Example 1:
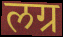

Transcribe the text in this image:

लग्र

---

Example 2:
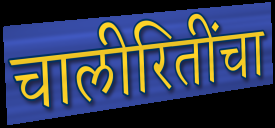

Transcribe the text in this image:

चालीरितींचा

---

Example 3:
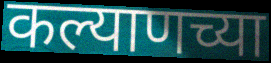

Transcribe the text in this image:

कल्याणच्या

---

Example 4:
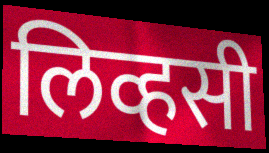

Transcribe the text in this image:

लिव्हसी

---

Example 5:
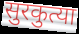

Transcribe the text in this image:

सुरकुत्या